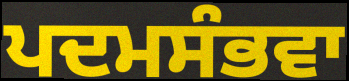
ਪਦਮਸੰਭਵਾ